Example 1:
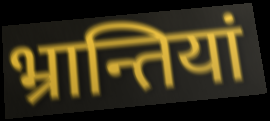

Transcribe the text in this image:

भ्रान्तियां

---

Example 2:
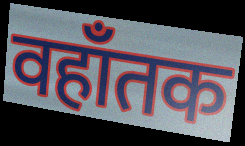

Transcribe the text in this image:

वहाँतक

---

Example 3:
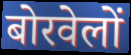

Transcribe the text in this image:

बोरवेलों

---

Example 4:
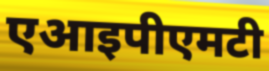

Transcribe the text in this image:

एआइपीएमटी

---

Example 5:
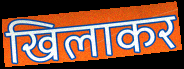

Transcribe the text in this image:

खिलाकर